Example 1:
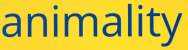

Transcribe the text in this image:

animality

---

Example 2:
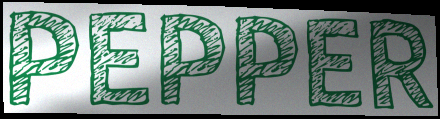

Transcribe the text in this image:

PEPPER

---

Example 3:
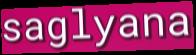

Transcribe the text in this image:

saglyana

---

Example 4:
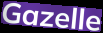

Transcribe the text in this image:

Gazelle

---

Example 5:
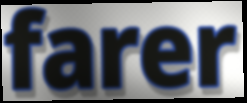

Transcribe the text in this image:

farer